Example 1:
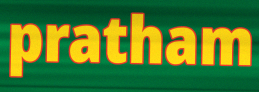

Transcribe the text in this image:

pratham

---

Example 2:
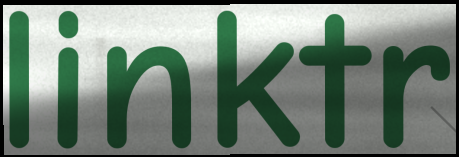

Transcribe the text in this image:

linktr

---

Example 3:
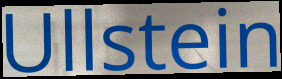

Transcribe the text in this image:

Ullstein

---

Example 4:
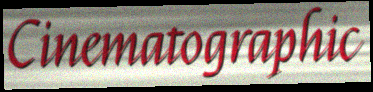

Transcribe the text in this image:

Cinematographic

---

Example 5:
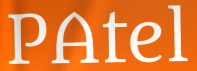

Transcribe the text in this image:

PAtel